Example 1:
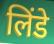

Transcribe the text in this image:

लिंडे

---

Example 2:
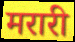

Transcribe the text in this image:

मरारी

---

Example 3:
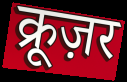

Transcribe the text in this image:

क्रूज़र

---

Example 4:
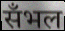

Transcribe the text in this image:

सँभल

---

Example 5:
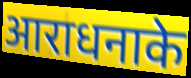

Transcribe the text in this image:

आराधनाके